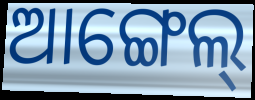
ଆଙ୍ଗେଲ୍